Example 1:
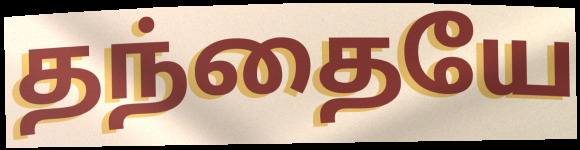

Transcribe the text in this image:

தந்தையே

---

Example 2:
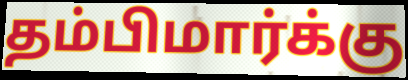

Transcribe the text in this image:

தம்பிமார்க்கு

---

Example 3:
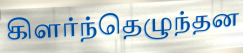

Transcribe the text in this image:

கிளர்ந்தெழுந்தன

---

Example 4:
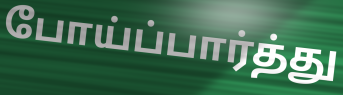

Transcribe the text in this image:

போய்ப்பார்த்து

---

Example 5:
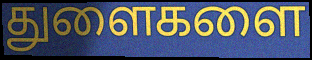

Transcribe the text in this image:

துளைகளை